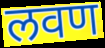
लवण